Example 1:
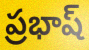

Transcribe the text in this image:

ప్రభాష్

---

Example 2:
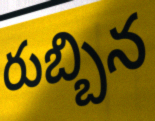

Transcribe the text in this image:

రుబ్బిన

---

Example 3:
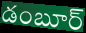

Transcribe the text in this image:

డంబూర్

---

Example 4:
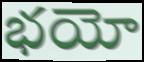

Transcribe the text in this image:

భయో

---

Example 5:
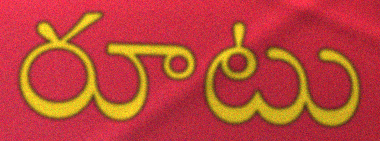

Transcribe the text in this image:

రూటు